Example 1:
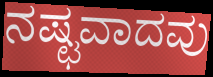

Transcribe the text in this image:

ನಷ್ಟವಾದವು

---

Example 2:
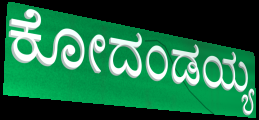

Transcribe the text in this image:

ಕೋದಂಡಯ್ಯ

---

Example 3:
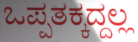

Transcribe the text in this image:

ಒಪ್ಪತಕ್ಕದ್ದಲ್ಲ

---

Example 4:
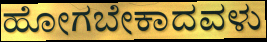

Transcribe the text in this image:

ಹೋಗಬೇಕಾದವಳು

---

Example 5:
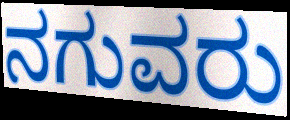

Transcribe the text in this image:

ನಗುವರು